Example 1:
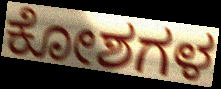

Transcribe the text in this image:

ಕೋಶಗಳ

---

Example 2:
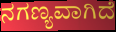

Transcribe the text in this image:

ನಗಣ್ಯವಾಗಿದೆ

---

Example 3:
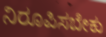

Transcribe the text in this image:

ನಿರೂಪಿಸಬೇಕು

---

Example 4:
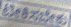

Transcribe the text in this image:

ಟೀಕಿಸಬೇಕು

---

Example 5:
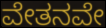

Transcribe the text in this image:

ವೇತನವೇ